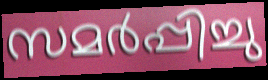
സമർപ്പിച്ചു